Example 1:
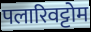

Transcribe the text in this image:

पलारिवट्टोम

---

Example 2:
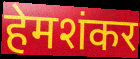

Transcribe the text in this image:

हेमशंकर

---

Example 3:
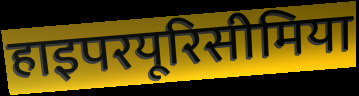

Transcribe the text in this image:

हाइपरयूरिसीमिया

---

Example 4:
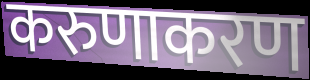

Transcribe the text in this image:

करुणाकरण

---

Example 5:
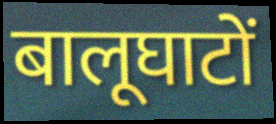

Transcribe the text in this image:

बालूघाटों